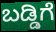
ಬಡ್ಡಿಗೆ